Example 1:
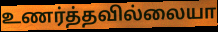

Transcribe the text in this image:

உணர்த்தவில்லையா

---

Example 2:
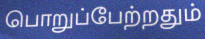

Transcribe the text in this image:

பொறுப்பேற்றதும்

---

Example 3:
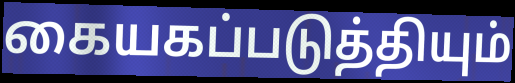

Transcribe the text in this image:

கையகப்படுத்தியும்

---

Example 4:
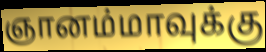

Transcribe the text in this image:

ஞானம்மாவுக்கு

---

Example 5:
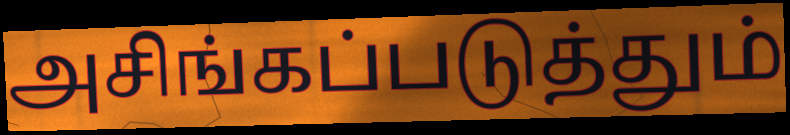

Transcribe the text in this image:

அசிங்கப்படுத்தும்